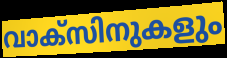
വാക്സിനുകളും